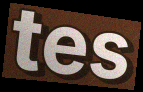
tes